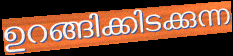
ഉറങ്ങിക്കിടക്കുന്ന